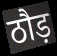
ठौड़